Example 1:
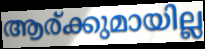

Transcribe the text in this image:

ആര്ക്കുമായില്ല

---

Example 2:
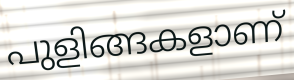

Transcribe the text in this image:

പുളിങ്ങകളാണ്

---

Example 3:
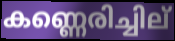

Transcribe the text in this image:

കണ്ണെരിച്ചില്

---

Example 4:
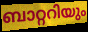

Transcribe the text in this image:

ബാറ്ററിയും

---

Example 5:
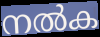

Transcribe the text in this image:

നൽക